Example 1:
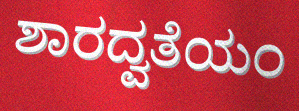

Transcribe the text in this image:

ಶಾರದ್ವತೆಯಂ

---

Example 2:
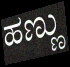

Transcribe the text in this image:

ಹಣ್ಣು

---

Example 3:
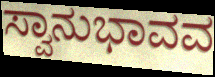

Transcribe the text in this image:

ಸ್ವಾನುಭಾವವ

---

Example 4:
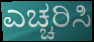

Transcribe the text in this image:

ಎಚ್ಚರಿಸಿ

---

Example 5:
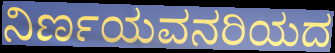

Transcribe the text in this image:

ನಿರ್ಣಯವನರಿಯದ